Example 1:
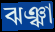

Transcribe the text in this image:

ঝঞ্ঝা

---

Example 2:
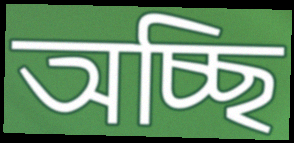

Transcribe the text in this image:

অচ্ছি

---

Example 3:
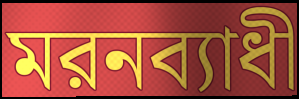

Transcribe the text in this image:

মরনব্যাধী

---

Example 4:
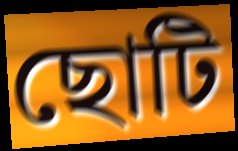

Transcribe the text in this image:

ছোটি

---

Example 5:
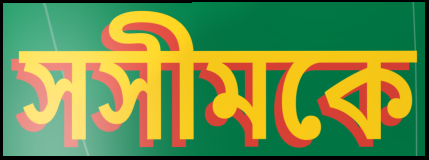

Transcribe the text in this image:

সসীমকে